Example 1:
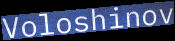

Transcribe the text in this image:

Voloshinov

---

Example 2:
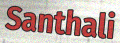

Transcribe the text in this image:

Santhali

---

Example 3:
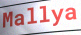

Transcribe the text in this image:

Mallya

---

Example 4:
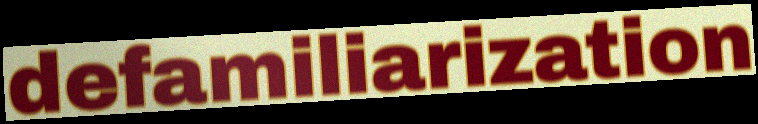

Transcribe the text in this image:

defamiliarization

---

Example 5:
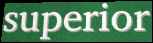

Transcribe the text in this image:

superior